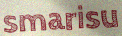
smarisu